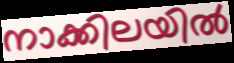
നാക്കിലയിൽ